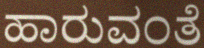
ಹಾರುವಂತೆ